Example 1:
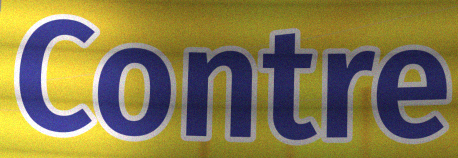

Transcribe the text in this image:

Contre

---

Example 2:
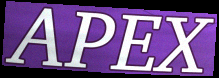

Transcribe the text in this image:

APEX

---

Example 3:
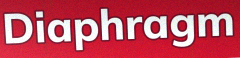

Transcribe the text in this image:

Diaphragm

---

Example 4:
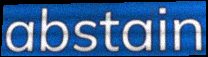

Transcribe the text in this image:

abstain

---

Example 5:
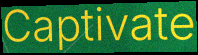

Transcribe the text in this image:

Captivate